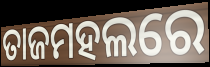
ତାଜମହଲରେ